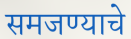
समजण्याचे